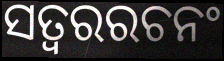
ସତ୍ୱରରଚନଂ